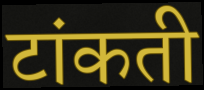
टांकती